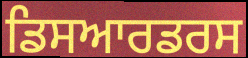
ਡਿਸਆਰਡਰਸ